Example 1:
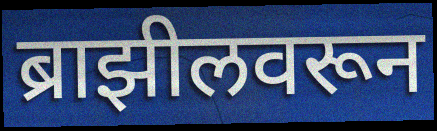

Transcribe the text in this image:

ब्राझीलवरून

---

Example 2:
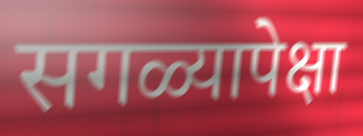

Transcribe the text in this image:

सगळ्यापेक्षा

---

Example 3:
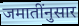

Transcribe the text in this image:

जमातींनुसार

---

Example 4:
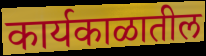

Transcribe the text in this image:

कार्यकाळातील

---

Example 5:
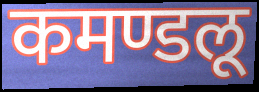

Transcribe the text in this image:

कमण्डलू